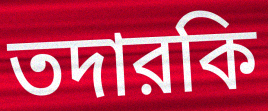
তদারকি